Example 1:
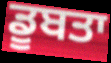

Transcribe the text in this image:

ਡੂਬਤਾ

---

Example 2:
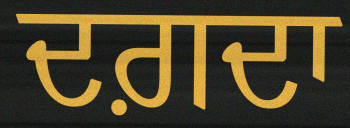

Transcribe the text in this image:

ਦਗ਼ਦਾ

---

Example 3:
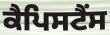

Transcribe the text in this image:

ਕੈਪਿਸਟੈਂਸ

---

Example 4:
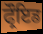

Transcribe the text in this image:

ਫ੍ਰੌਇਡ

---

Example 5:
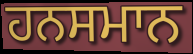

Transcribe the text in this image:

ਹਨਸਮਾਨ